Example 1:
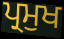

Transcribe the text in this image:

ਪ੍ਰਮੁਖ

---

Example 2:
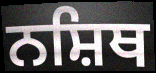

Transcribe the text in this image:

ਨਸ਼ਿਥ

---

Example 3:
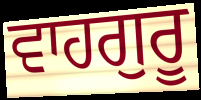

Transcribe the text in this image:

ਵਾਹਗੁਰੂ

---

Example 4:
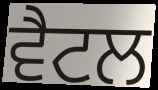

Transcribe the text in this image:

ਵੈਟਲ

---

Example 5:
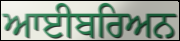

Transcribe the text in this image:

ਆਈਬਰਿਅਨ